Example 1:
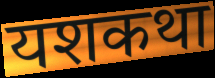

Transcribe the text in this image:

यशकथा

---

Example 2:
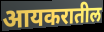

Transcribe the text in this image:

आयकरातील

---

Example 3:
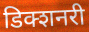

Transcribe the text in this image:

डिक्शनरी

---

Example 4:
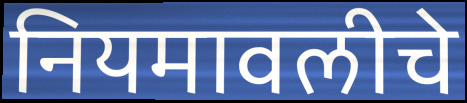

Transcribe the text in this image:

नियमावलीचे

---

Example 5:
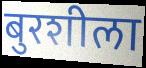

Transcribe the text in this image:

बुरशीला